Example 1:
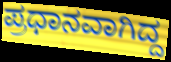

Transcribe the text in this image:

ಪ್ರಧಾನವಾಗಿದ್ದ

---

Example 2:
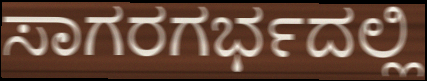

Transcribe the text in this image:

ಸಾಗರಗರ್ಭದಲ್ಲಿ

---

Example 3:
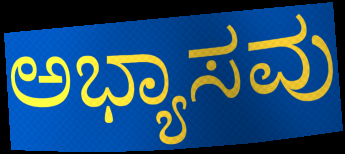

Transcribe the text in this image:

ಅಭ್ಯಾಸವು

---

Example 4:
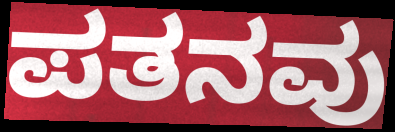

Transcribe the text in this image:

ಪತನವು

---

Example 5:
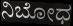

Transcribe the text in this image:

ನಿಬೋಧ